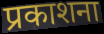
प्रकाशना